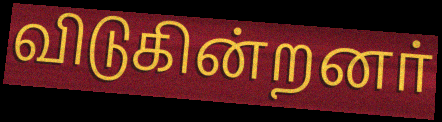
விடுகின்றனர்